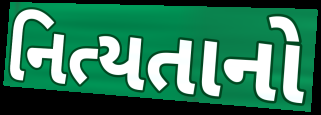
નિત્યતાનો